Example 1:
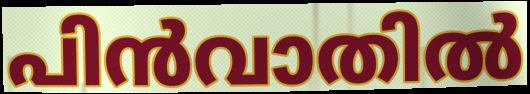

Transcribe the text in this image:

പിൻവാതിൽ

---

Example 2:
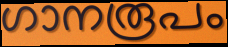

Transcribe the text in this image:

ഗാനരൂപം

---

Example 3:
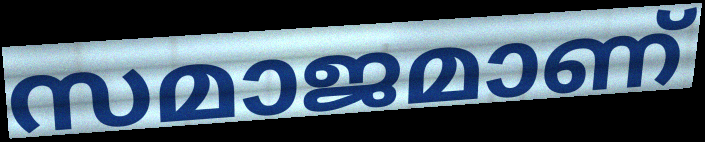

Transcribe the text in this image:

സമാജമാണ്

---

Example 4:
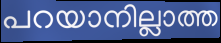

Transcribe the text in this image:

പറയാനില്ലാത്ത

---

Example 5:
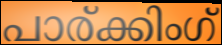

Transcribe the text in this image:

പാര്ക്കിംഗ്